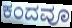
ಕಂದವೂ